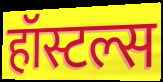
हॉस्टल्स